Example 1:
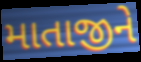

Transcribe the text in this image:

માતાજીને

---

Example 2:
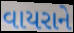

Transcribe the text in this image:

વાયરાને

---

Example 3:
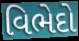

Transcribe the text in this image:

વિભેદો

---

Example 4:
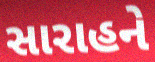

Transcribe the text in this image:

સારાહને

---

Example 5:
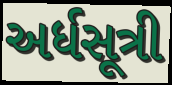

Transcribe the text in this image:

અર્ધસૂત્રી